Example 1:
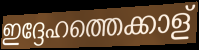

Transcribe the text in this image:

ഇദ്ദേഹത്തെക്കാള്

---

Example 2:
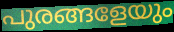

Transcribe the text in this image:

പുരങ്ങളേയും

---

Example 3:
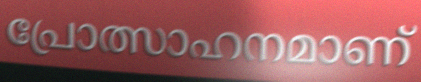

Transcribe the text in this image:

പ്രോത്സാഹനമാണ്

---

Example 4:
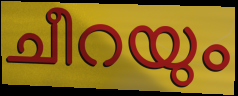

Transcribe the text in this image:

ചീറയും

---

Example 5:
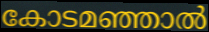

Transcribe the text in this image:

കോടമഞ്ഞാൽ